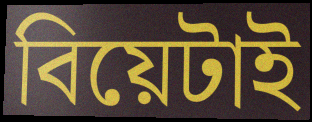
বিয়েটাই